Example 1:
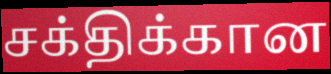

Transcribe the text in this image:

சக்திக்கான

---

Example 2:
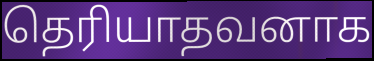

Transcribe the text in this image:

தெரியாதவனாக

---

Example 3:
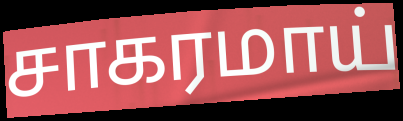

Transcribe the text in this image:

சாகரமாய்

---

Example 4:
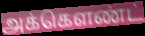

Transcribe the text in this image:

அக்கெளண்ட்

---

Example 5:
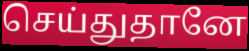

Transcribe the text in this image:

செய்துதானே